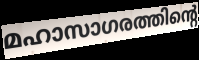
മഹാസാഗരത്തിന്റെ